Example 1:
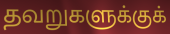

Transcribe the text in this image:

தவறுகளுக்குக்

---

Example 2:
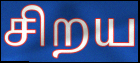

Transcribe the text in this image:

சிறய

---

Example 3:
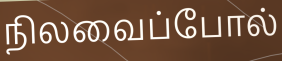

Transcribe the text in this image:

நிலவைப்போல்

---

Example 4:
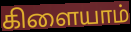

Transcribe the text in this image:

கிளையாம்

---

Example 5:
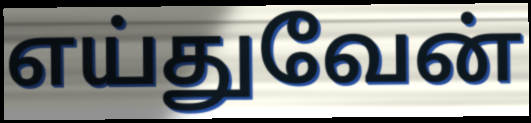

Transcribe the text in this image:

எய்துவேன்